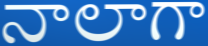
నాలాగా